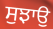
ਸੁਝਾਉ